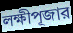
লক্ষীপূজার